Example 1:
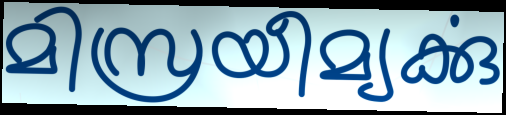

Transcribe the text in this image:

മിസ്രയീമ്യൎക്കു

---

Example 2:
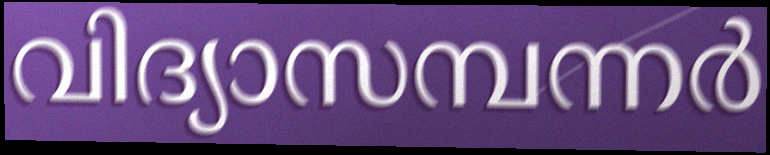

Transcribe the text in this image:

വിദ്യാസമ്പന്നർ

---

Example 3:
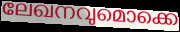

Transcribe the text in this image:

ലേഖനവുമൊക്കെ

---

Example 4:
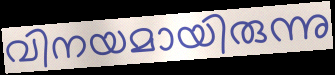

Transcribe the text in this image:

വിനയമായിരുന്നു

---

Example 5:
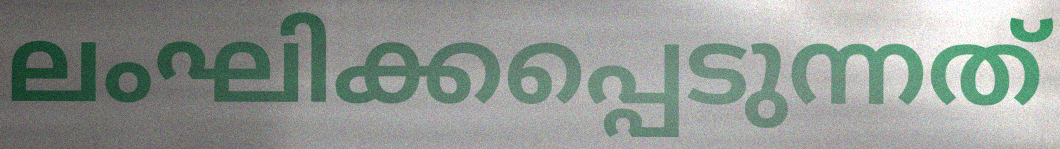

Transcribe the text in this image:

ലംഘിക്കപ്പെടുന്നത്